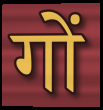
गों